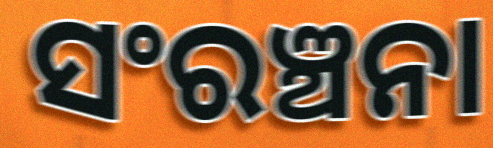
ସଂରଞ୍ଚନା